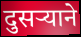
दुसर्‍याने